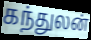
கந்துலன்